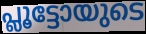
പ്ലൂട്ടോയുടെ